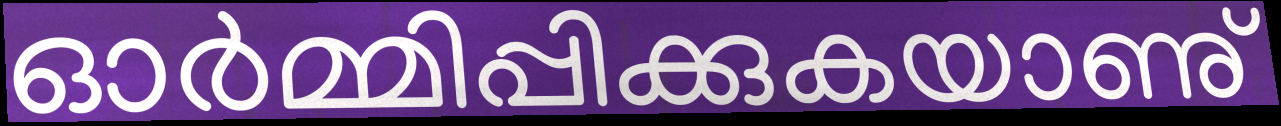
ഓർമ്മിപ്പിക്കുകയാണു്